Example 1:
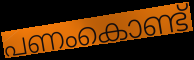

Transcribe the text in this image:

പണംകൊണ്ട്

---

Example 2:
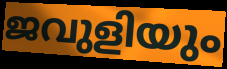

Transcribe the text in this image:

ജവുളിയും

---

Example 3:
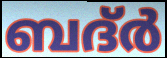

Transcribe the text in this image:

ബദ്ർ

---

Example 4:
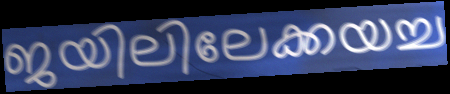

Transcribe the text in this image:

ജയിലിലേക്കയച്ച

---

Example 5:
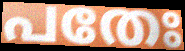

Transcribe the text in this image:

പതേഃ